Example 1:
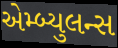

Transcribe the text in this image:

એમ્બ્યુલન્સ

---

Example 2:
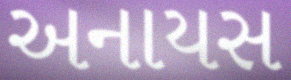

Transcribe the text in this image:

અનાયસ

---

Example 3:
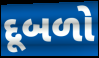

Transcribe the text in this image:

દૂબળો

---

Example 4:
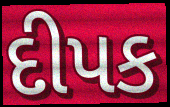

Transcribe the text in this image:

દીપક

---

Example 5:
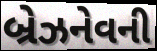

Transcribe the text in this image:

બ્રેઝનેવની